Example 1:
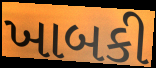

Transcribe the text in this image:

ખાબકી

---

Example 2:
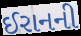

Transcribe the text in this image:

ઈરાનની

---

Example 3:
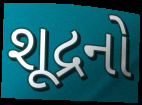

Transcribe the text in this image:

શૂદ્રનો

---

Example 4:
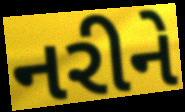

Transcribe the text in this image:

નરીને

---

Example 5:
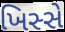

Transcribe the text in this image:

ખિસ્સે